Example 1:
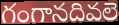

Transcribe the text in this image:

గంగానదివలె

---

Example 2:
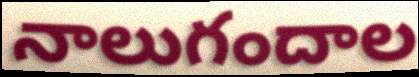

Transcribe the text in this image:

నాలుగందాల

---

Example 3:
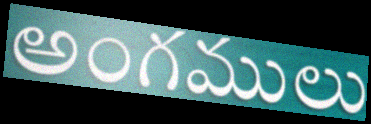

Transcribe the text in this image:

అంగములు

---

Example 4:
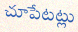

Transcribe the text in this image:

చూపేటట్లు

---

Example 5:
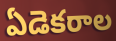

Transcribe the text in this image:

ఏడెకరాల